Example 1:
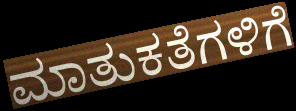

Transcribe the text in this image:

ಮಾತುಕತೆಗಳಿಗೆ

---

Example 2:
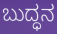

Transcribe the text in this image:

ಬುದ್ಧನ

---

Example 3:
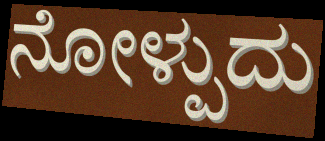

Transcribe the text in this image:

ನೋಳ್ಪುದು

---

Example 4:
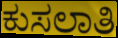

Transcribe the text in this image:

ಕುಸಲಾತಿ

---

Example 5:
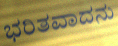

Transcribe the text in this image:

ಭರಿತವಾದನು